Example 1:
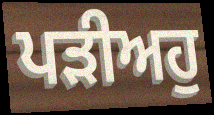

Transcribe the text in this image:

ਪੜੀਅਹੁ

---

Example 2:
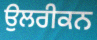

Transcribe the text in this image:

ਉਲਰੀਕਨ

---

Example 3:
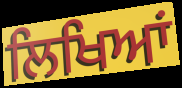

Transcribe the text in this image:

ਲਿਖਿਆਂ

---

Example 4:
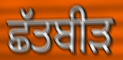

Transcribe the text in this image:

ਛੱਤਬੀੜ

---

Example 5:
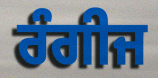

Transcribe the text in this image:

ਰੰਗੀਜ